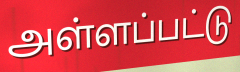
அள்ளப்பட்டு